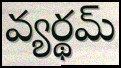
వ్యర్థమ్